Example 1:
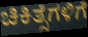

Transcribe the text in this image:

ಚಿಕಿತ್ಸೆಗಳಿಗೆ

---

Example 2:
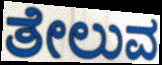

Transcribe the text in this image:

ತೇಲುವ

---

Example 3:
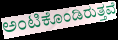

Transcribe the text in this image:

ಅಂಟಿಕೊಂಡಿರುತ್ತವೆ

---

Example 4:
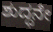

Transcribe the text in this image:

ಶುದ್ಧನೇ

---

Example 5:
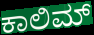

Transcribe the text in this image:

ಕಾಲಿಮ್